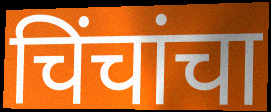
चिंचांचा